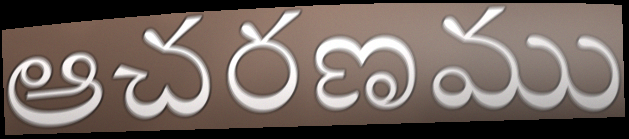
ఆచరణము